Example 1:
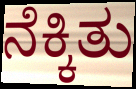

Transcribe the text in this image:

ನೆಕ್ಕಿತು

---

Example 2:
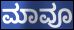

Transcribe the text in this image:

ಮಾವೂ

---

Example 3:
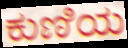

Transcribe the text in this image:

ಕುಣಿಯ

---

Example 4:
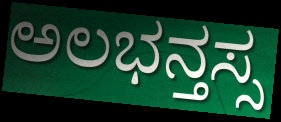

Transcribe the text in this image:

ಅಲಭನ್ತಸ್ಸ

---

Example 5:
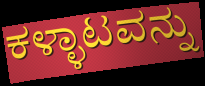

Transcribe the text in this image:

ಕಳ್ಳಾಟವನ್ನು